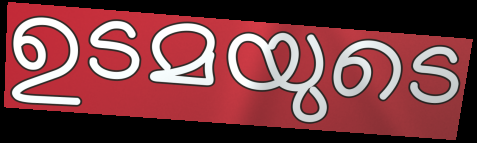
ഉടമയുടെ